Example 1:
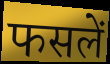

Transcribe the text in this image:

फसलें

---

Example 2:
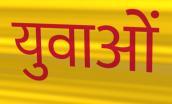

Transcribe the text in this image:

युवाओं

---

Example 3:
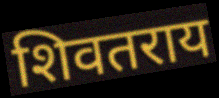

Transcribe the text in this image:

शिवतराय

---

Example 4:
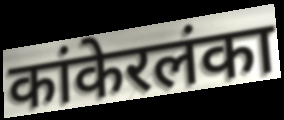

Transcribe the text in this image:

कांकेरलंका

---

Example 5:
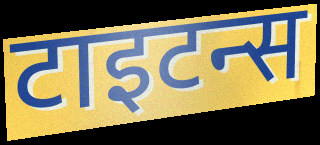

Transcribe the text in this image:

टाइटन्स